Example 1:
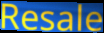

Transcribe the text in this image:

Resale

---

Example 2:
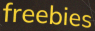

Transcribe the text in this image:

freebies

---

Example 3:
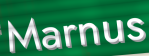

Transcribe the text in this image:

Marnus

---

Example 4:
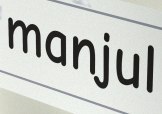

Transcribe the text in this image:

manjul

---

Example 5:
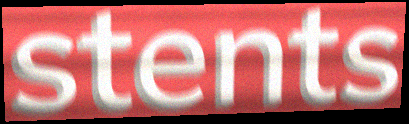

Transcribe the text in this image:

stents